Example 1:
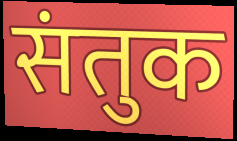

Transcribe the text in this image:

संतुक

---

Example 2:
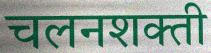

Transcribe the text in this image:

चलनशक्ती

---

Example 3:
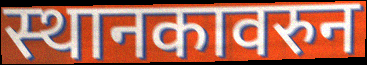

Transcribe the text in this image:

स्थानकावरुन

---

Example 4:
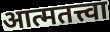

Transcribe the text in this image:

आत्मतत्त्वा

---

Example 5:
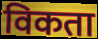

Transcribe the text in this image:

विकता